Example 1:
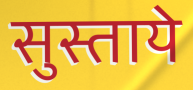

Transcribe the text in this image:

सुस्ताये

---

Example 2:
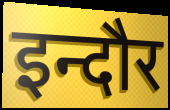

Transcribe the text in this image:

इन्दौर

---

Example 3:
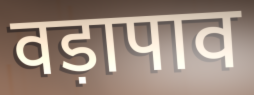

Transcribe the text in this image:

वड़ापाव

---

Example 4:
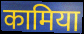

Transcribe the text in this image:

कामिया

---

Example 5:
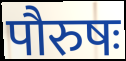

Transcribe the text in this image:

पौरुषः